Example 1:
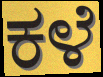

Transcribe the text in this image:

ಕಳೆ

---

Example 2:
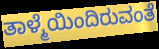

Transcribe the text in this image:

ತಾಳ್ಮೆಯಿಂದಿರುವಂತೆ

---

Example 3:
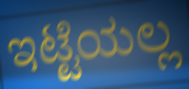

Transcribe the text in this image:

ಇಟ್ಟೆಯಲ್ಲ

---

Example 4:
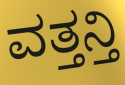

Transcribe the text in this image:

ವತ್ತನ್ತಿ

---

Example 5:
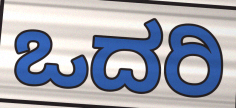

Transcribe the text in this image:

ಒದರಿ